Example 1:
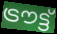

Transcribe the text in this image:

ട്രൗട്ട്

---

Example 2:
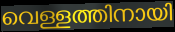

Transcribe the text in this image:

വെള്ളത്തിനായി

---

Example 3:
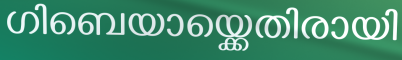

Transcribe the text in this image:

ഗിബെയായ്ക്കെതിരായി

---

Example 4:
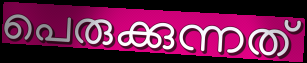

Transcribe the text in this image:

പെരുക്കുന്നത്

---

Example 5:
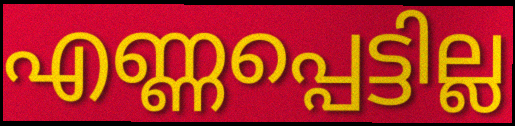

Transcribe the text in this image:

എണ്ണപ്പെട്ടില്ല